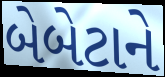
બેબેટાને